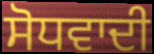
ਸੋਧਵਾਦੀ